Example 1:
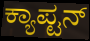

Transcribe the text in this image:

ಕ್ಯಾಪ್ಟನ್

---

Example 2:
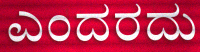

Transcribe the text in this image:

ಎಂದರದು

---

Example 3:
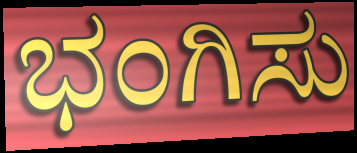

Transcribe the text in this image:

ಭಂಗಿಸು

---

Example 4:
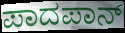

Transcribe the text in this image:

ಪಾದಪಾನ್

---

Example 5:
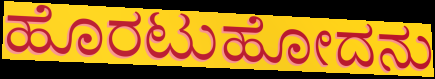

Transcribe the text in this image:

ಹೊರಟುಹೋದನು